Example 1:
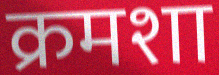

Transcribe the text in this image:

क्रमशा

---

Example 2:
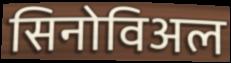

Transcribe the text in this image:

सिनोविअल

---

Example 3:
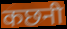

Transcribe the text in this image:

कछनी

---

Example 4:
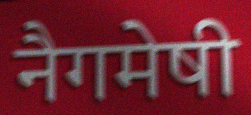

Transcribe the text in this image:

नैगमेषी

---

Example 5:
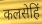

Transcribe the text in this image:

कलसेहिं